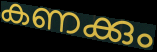
കണക്കും